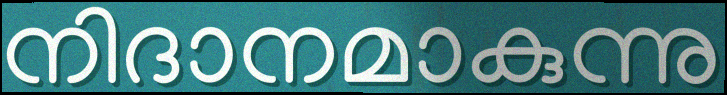
നിദാനമാകുന്നു